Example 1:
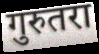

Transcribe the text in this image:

गुरुतरा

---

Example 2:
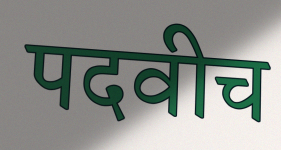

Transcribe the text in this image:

पदवीच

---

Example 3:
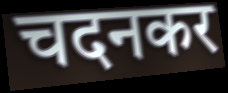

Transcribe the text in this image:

चदनकर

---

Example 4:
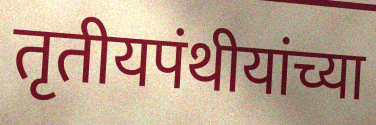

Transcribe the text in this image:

तृतीयपंथीयांच्या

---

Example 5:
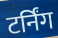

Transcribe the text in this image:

टर्निंग